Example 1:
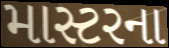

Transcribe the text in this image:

માસ્ટરના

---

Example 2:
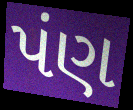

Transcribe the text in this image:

પંણ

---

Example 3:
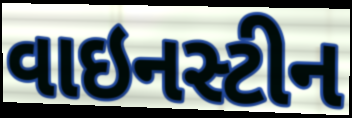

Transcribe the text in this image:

વાઇનસ્ટીન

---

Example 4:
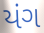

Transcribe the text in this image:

યંગ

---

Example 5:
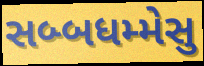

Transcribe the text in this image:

સબ્બધમ્મેસુ